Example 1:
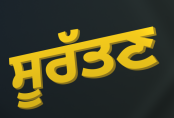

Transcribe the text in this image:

ਸੂਰੱਤਣ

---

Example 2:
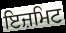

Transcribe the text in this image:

ਇਜ਼ਮਿਟ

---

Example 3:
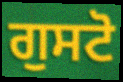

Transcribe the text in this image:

ਗੁਸਟੋ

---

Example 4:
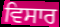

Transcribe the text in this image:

ਵਿਸਾਰ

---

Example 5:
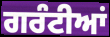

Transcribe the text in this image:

ਗਰੰਟੀਆਂ